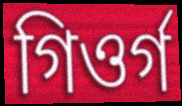
গিওৰ্গ